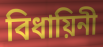
বিধায়িনী